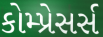
કોમ્પ્રેસર્સ